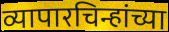
व्यापारचिन्हांच्या